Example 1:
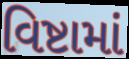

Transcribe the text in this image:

વિષ્ટામાં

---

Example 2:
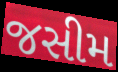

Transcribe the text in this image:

જસીમ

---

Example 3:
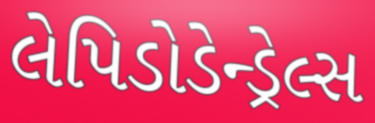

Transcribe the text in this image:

લેપિડોડેન્ડ્રેલ્સ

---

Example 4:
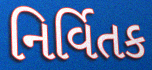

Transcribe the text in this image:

નિર્વિતક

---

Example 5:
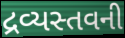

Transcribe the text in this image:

દ્રવ્યસ્તવની